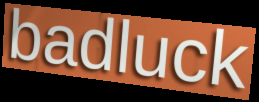
badluck